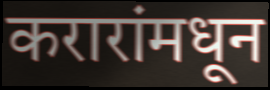
करारांमधून